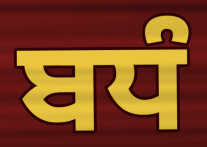
ਬਧੰ